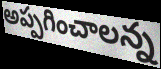
అప్పగించాలన్న